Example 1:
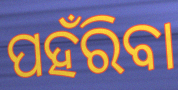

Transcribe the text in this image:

ପହଁରିବା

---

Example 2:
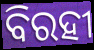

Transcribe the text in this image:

ବିରହୀ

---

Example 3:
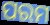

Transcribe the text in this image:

ପରମ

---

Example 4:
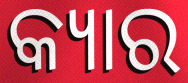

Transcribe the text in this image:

କ୍ୟାର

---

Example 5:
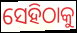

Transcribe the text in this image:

ସେହିଠାକୁ